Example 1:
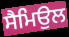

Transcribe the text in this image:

ਸੈਮਿਉਲ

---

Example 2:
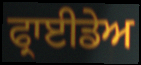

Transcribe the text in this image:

ਫ੍ਰਾਈਡੇਅ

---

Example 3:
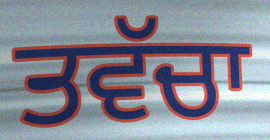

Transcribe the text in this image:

ਤਵੱਚਾ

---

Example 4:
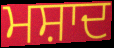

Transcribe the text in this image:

ਮਸ਼ਾਦ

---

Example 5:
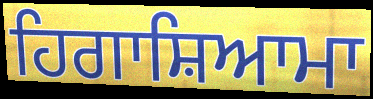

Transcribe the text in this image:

ਹਿਗਾਸ਼ਿਆਮਾ